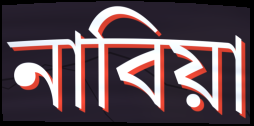
নাবিয়া